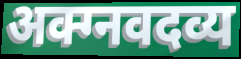
अक्ग्नवदव्य